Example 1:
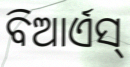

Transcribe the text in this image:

ବିଆର୍ଏସ୍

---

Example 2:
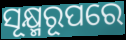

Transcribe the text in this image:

ସୂକ୍ଷ୍ମରୂପରେ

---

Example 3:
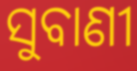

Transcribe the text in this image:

ସୁବାଣୀ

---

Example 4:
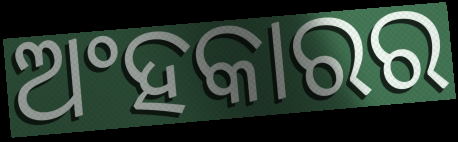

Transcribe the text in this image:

ଅଂହକାରର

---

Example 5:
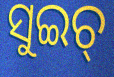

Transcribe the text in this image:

ସୁଇଚ୍